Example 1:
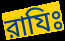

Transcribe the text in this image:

রাযিঃ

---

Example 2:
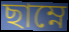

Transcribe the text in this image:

ছাম্নে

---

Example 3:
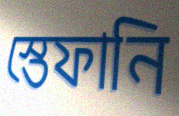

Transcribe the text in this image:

স্তেফানি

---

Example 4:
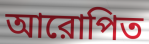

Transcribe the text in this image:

আরোপিত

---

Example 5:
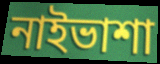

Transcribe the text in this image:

নাইভাশা